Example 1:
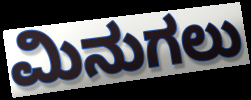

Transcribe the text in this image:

ಮಿನುಗಲು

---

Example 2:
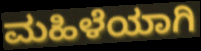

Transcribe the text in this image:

ಮಹಿಳೆಯಾಗಿ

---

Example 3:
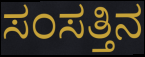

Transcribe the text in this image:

ಸಂಸತ್ತಿನ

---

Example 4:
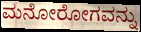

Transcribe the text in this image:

ಮನೋರೋಗವನ್ನು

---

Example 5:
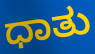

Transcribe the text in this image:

ಧಾತು